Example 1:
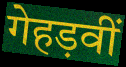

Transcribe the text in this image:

गेहड़वीं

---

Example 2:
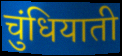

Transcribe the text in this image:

चुंधियाती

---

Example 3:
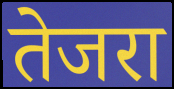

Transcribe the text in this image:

तेजरा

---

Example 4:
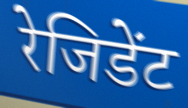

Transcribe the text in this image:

रेजिडेंट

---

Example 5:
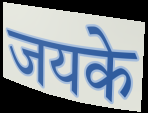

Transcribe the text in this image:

जयके